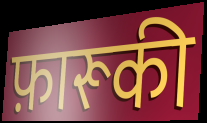
फ़ारूकी